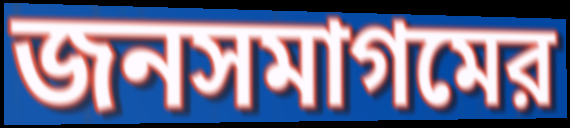
জনসমাগমের